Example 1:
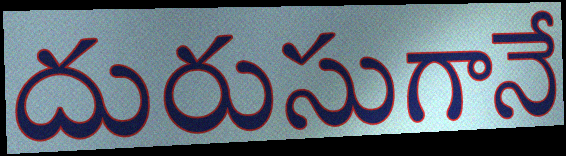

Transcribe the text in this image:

దురుసుగానే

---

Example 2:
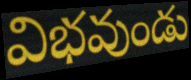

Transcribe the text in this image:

విభవుండు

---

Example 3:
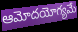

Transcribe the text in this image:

ఆమోదయోగ్యమే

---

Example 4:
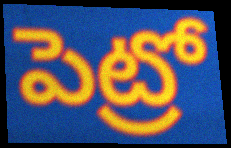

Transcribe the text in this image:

పెట్రో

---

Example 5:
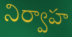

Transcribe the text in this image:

నిర్వాహ